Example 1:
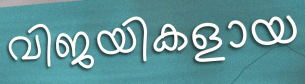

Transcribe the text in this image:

വിജയികളായ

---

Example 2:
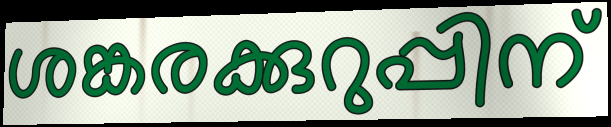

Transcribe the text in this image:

ശങ്കരക്കുറുപ്പിന്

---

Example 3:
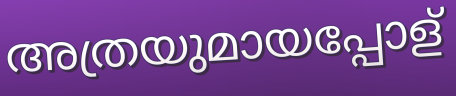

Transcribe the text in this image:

അത്രയുമായപ്പോള്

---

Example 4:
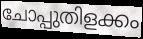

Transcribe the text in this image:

ചോപ്പുതിളക്കം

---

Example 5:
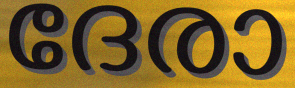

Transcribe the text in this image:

ദേരാ